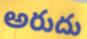
అరుదు